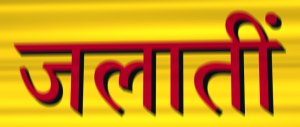
जलातीं